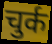
चुर्क